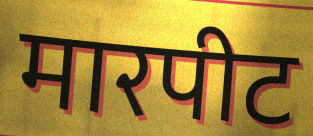
मारपीट